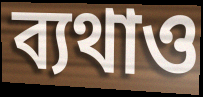
ব্যথাও